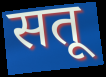
सतू